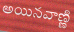
అయినవాణ్ణి